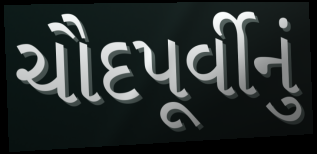
ચૌદપૂર્વીનું